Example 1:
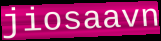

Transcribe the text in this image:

jiosaavn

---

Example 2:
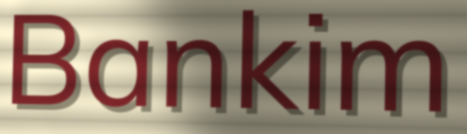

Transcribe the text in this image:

Bankim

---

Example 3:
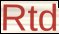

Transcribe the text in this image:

Rtd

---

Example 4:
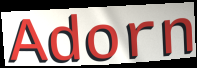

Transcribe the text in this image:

Adorn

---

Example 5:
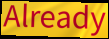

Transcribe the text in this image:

Already